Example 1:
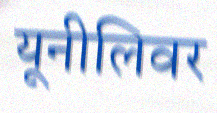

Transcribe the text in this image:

यूनीलिवर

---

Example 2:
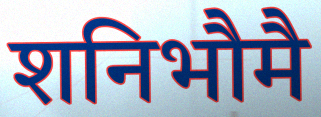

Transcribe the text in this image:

शनिभौमै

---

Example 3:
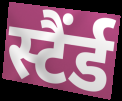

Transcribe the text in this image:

स्टैंर्ड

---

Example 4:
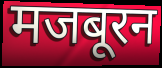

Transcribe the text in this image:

मजबूरन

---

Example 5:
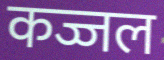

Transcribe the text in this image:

कज्जल